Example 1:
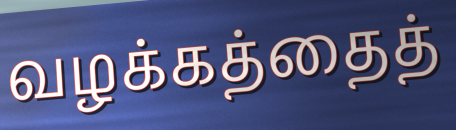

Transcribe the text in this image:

வழக்கத்தைத்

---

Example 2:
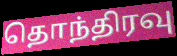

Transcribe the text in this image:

தொந்திரவு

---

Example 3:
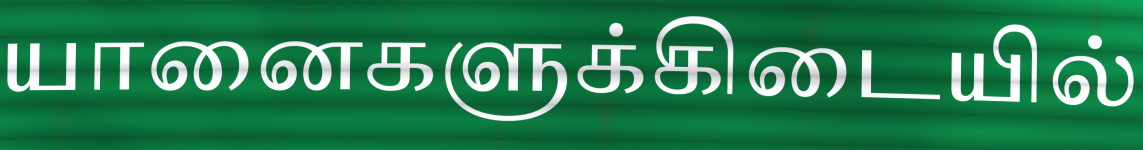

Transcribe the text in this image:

யானைகளுக்கிடையில்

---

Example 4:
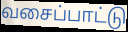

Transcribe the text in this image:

வசைப்பாட்டு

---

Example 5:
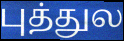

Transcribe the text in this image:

புத்துல